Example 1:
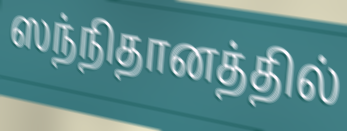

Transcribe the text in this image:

ஸந்நிதானத்தில்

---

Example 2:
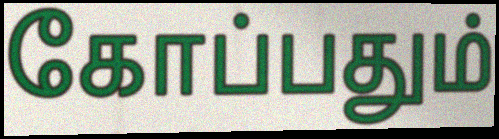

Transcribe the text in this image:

கோப்பதும்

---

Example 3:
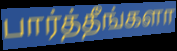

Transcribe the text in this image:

பார்த்தீங்களா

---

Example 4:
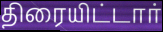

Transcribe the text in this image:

திரையிட்டார்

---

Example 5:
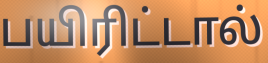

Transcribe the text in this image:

பயிரிட்டால்